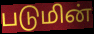
படுமின்